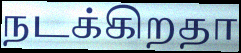
நடக்கிறதா